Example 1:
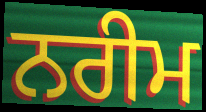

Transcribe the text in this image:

ਨਰੀਮ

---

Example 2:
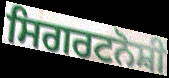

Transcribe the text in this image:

ਸਿਗਰਟਨੋਸ਼ੀ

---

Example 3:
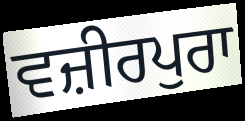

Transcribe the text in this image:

ਵਜ਼ੀਰਪੁਰਾ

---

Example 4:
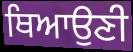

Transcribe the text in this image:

ਥਿਆਉਣੀ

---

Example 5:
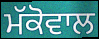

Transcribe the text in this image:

ਮੱਕੋਵਾਲ